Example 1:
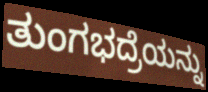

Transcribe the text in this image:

ತುಂಗಭದ್ರೆಯನ್ನು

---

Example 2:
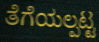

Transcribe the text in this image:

ತೆಗೆಯಲ್ಪಟ್ಟ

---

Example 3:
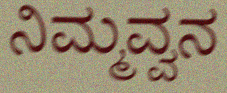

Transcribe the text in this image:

ನಿಮ್ಮವ್ವನ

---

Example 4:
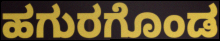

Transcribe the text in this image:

ಹಗುರಗೊಂಡ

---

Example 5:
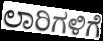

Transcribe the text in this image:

ಲಾರಿಗಳಿಗೆ